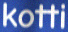
kotti